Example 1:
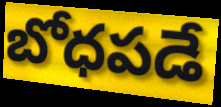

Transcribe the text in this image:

బోధపడే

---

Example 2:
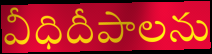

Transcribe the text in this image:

వీధిదీపాలను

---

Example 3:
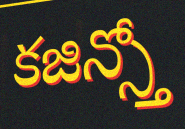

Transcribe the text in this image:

కజిన్స్తో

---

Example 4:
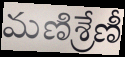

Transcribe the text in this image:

మణిశ్రేణీ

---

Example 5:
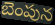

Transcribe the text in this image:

బెంపున